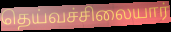
தெய்வச்சிலையார்